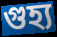
গুহ্য